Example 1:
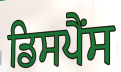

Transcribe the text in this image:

ਡਿਸਪੈਂਸ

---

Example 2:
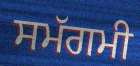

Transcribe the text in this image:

ਸਮੱਗਮੀ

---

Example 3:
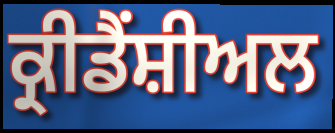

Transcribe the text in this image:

ਕ੍ਰੀਡੈਂਸ਼ੀਅਲ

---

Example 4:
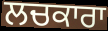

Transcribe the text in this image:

ਲਚਕਾਰਾ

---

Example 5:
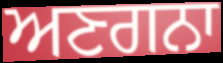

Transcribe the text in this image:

ਅਣਗਨਾ